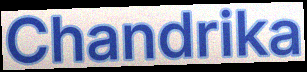
Chandrika